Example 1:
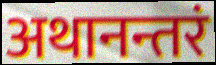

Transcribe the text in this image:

अथानन्तरं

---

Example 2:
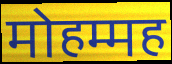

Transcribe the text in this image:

मोहम्मह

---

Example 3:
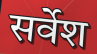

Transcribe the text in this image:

सर्वेश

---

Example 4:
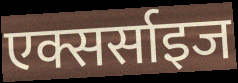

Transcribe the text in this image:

एक्सर्साइज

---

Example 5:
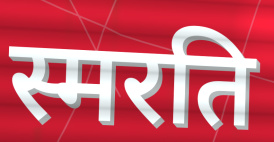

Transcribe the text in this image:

स्मरति